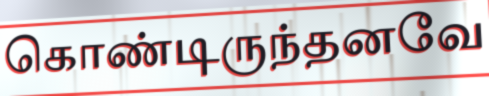
கொண்டிருந்தனவே